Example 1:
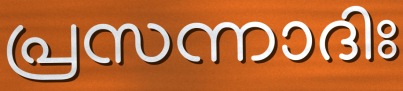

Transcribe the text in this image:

പ്രസന്നാദിഃ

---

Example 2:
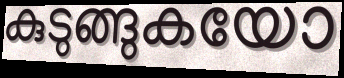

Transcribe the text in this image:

കുടുങ്ങുകയോ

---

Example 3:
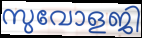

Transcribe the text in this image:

സുവോളജി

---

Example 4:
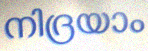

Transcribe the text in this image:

നിദ്രയാം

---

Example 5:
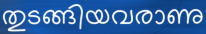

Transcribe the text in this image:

തുടങ്ങിയവരാണു